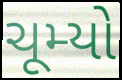
ચૂમ્યો